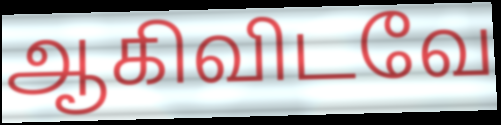
ஆகிவிடவே